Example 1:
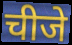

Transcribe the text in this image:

चीजे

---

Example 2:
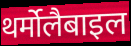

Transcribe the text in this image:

थर्मोलैबाइल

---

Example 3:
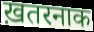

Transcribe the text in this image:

ख़तरनाक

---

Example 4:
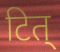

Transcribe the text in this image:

टित्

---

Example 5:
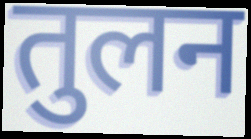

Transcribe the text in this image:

तुलन